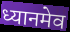
ध्यानमेव